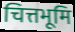
चित्तभूमि